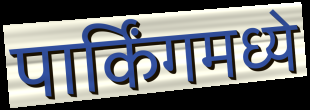
पार्किंगमध्ये